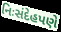
નિઃસંદેહપણે